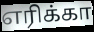
எரிக்கா